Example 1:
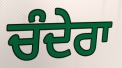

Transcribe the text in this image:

ਚੰਦੇਰਾ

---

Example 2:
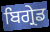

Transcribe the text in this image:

ਬਿਗ੍ਰੇਡ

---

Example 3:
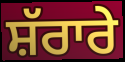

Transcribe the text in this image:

ਸ਼ੱਰਾਰੇ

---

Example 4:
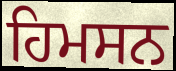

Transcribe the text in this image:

ਹਿਮਸਨ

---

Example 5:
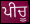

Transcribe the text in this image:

ਪੀਚੂ